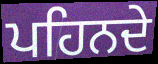
ਪਹਿਨਦੇ